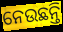
ନେଉଛନ୍ତି